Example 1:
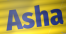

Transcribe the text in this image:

Asha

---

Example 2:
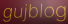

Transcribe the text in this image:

gujblog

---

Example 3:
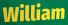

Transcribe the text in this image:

William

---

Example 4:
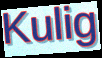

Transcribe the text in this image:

Kulig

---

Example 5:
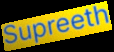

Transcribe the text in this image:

Supreeth